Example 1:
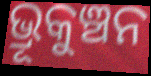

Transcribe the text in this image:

ଭ୍ରୂକୁଞ୍ଚନ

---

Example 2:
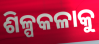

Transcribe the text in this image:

ଶିଳ୍ପକଳାକୁ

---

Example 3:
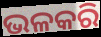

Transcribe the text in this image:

ଭଳକରି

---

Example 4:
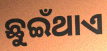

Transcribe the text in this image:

ଛୁଇଁଥାଏ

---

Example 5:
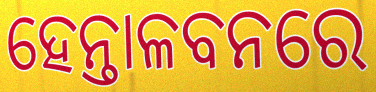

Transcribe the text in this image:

ହେନ୍ତାଳବନରେ